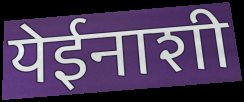
येईनाशी